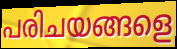
പരിചയങ്ങളെ